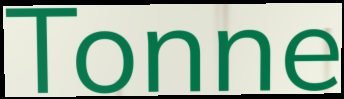
Tonne